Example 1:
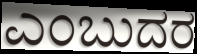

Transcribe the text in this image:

ಎಂಬುದರ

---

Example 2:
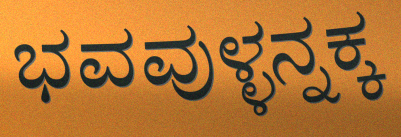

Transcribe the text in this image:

ಭವವುಳ್ಳನ್ನಕ್ಕ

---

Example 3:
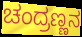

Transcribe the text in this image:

ಚಂದ್ರಣ್ಣನ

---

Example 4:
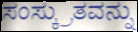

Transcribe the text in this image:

ಸಂಸ್ಕ್ರುತವನ್ನು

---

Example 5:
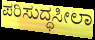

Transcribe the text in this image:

ಪರಿಸುದ್ಧಸೀಲಾ